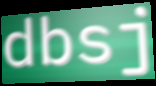
dbsj